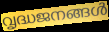
വൃദ്ധജനങ്ങൾ